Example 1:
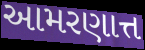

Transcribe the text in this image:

આમરણાત્ત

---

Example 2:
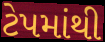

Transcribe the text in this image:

ટેપમાંથી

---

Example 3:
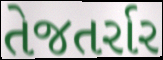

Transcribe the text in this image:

તેજતર્રાર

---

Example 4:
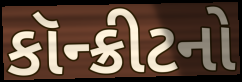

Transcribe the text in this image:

કૉન્ક્રીટનો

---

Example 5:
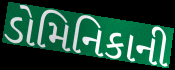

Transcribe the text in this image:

ડોમિનિકાની